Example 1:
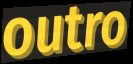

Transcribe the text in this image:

outro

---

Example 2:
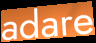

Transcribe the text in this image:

adare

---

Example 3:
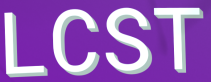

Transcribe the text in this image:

LCST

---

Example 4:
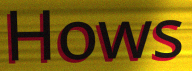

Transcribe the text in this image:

Hows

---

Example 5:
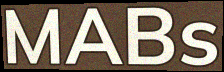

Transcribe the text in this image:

MABs